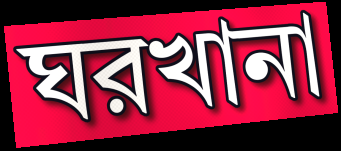
ঘরখানা